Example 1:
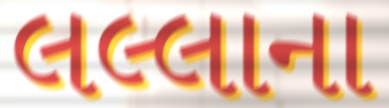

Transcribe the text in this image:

લલ્લાના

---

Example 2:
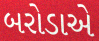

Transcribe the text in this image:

બરોડાએ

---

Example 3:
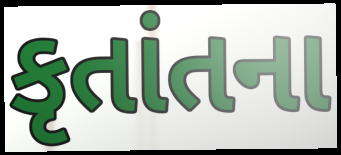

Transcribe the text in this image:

કૃતાંતના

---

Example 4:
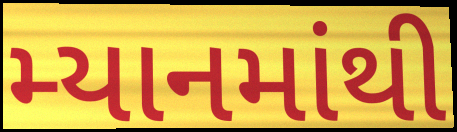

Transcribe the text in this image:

મ્યાનમાંથી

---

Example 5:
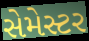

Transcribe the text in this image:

સેમેસ્ટર